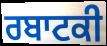
ਰਬਾਟਕੀ